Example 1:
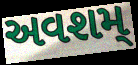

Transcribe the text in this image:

અવશમ્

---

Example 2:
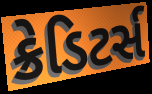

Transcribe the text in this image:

ક્રેડિટર્સ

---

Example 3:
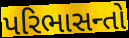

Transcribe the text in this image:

પરિભાસન્તો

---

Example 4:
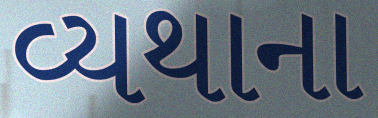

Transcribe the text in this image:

વ્યથાના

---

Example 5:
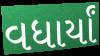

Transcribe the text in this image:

વધાર્યાં